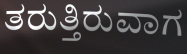
ತರುತ್ತಿರುವಾಗ